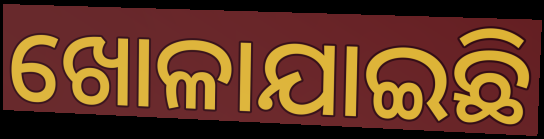
ଖୋଳାଯାଇଛି